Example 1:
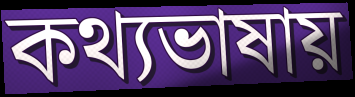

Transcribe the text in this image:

কথ্যভাষায়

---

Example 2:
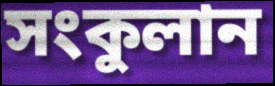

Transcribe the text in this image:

সংকুলান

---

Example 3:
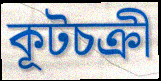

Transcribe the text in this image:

কূটচক্রী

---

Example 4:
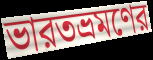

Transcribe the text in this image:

ভারতভ্রমণের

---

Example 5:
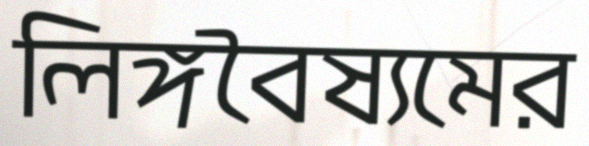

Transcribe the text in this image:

লিঙ্গবৈষ্যমের